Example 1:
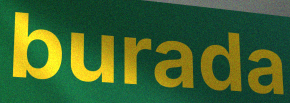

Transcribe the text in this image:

burada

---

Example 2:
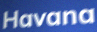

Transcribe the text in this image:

Havana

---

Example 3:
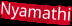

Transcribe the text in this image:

Nyamathi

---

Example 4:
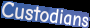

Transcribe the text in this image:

Custodians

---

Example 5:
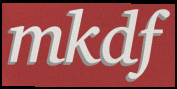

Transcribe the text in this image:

mkdf